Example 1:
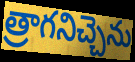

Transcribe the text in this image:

త్రాగనిచ్చెను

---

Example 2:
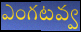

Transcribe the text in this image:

ఎంగటవ్వ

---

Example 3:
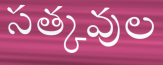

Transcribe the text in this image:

సత్కవుల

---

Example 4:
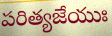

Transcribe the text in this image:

పరిత్యజేయుః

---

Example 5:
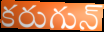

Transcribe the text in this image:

కరుగున్